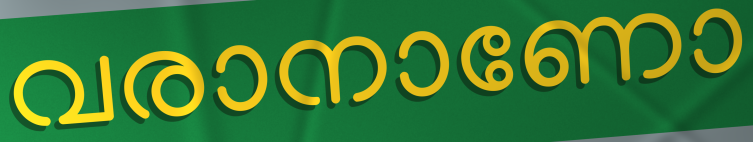
വരാനാണോ